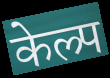
केल्प